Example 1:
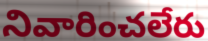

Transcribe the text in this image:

నివారించలేరు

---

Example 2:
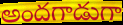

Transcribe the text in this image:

అందగాడుగా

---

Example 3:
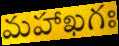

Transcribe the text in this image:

మహాఖగః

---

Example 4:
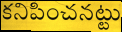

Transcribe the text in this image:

కనిపించనట్టు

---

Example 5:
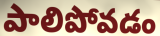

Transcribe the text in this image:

పాలిపోవడం